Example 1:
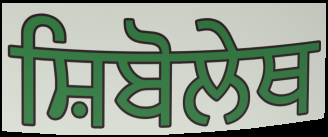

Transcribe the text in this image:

ਸ਼ਿਬੋਲੇਥ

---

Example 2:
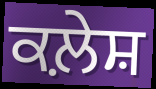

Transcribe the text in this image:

ਕਲ਼ੇਸ਼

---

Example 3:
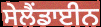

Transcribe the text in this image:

ਸੇਲੈਂਡਾਈਨ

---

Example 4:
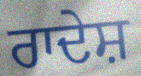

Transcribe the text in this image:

ਰਾਦੇਸ਼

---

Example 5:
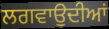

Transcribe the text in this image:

ਲਗਵਾਉਦੀਆਂ